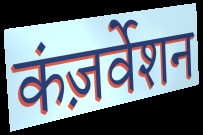
कंज़र्वेशन